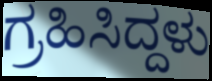
ಗ್ರಹಿಸಿದ್ದಳು